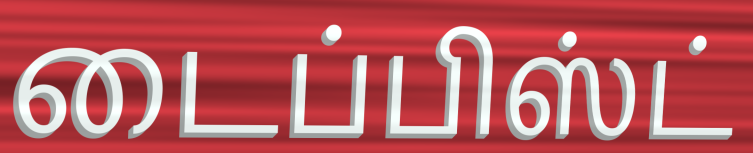
டைப்பிஸ்ட்